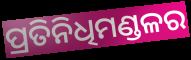
ପ୍ରତିନିଧିମଣ୍ଡଳର